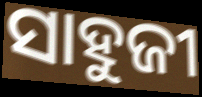
ସାହୁଜୀ